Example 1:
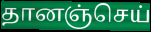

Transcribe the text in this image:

தானஞ்செய்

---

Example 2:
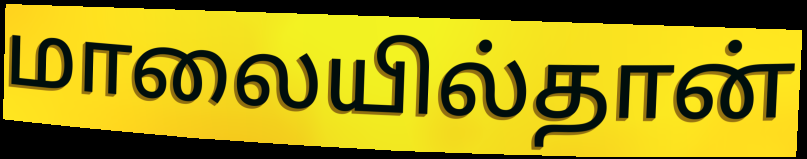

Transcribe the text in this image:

மாலையில்தான்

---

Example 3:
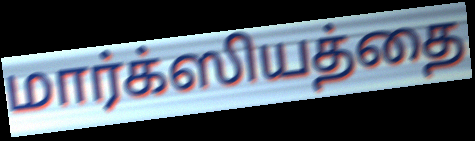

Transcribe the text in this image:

மார்க்ஸியத்தை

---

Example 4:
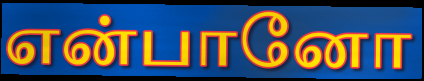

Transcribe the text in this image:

என்பானோ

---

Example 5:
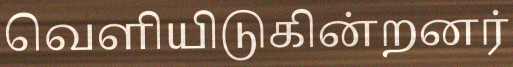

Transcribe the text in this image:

வெளியிடுகின்றனர்